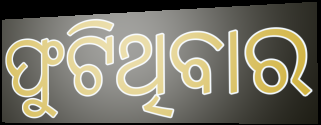
ଫୁଟିଥିବାର